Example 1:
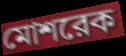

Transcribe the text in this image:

মোশরেক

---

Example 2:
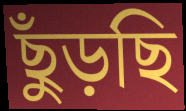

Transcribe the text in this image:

ছুঁড়ছি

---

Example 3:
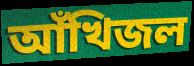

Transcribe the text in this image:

আঁখিজল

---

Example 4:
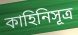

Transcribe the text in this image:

কাহিনিসূত্র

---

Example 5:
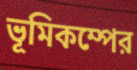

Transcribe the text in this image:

ভূমিকম্পের